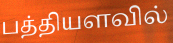
பத்தியளவில்